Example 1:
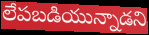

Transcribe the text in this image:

లేపబడియున్నాడని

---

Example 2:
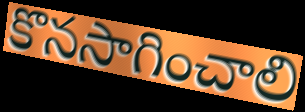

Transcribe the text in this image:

కొనసాగించాలి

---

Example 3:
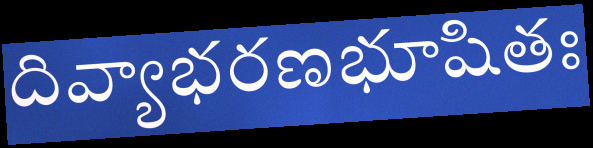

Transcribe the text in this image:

దివ్యాభరణభూషితః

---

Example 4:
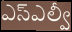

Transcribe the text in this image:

ఎస్ఎల్వీ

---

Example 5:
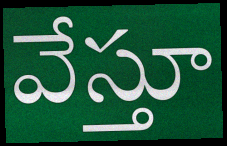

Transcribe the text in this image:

వేస్తూ